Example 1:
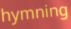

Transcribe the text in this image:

hymning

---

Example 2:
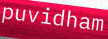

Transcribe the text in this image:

puvidham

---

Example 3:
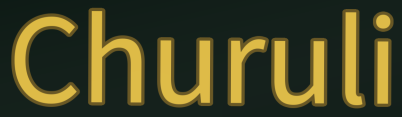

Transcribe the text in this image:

Churuli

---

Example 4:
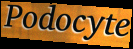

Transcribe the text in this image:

Podocyte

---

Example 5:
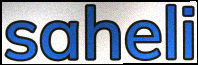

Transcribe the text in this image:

saheli